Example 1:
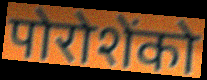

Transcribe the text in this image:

पोरोशेंको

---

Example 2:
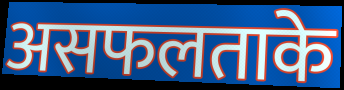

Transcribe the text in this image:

असफलताके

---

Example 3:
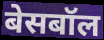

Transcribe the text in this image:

बेसबॉल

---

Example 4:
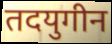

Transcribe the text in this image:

तदयुगीन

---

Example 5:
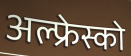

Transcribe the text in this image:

अल्फ्रेस्को